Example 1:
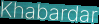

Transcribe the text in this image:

Khabardar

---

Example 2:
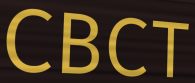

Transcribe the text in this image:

CBCT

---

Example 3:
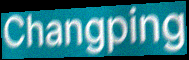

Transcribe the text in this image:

Changping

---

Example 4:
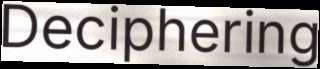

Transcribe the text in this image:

Deciphering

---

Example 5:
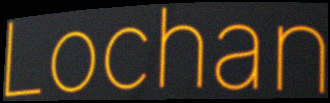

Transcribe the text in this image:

Lochan